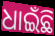
ଧାଇଁଛି